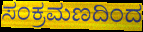
ಸಂಕ್ರಮಣದಿಂದ